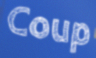
Coup